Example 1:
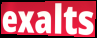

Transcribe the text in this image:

exalts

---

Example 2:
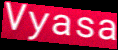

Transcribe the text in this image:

Vyasa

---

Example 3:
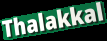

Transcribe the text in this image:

Thalakkal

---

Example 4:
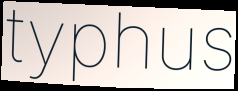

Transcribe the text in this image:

typhus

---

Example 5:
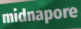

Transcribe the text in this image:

midnapore